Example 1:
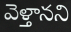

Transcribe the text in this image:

వెళ్తానని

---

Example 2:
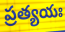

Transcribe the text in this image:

ప్రత్యయః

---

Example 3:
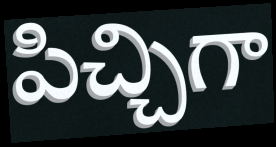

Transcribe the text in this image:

పిచ్చిగా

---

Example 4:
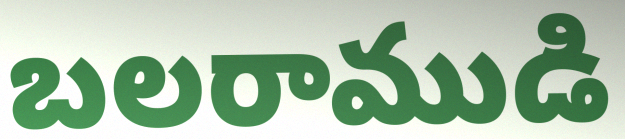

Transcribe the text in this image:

బలరాముడి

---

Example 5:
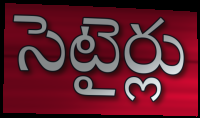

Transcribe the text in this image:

సెటైర్లు